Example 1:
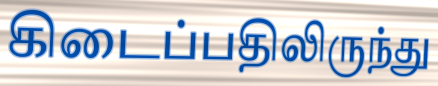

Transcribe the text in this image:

கிடைப்பதிலிருந்து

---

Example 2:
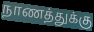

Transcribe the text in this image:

நாணத்துக்கு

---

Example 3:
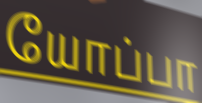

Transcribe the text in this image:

யோப்பா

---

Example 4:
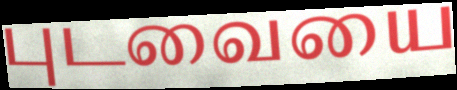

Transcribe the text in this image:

புடவையை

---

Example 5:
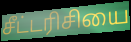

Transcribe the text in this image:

சீட்டரிசியை